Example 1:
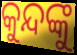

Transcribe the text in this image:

କୁନ୍ଦଙ୍କୁ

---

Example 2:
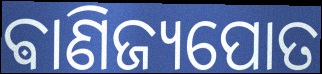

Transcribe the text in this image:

ଵାଣିଜ୍ୟପୋତ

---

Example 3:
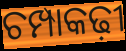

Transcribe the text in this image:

ଚମ୍ପାକଢ଼ୀ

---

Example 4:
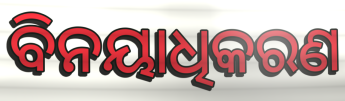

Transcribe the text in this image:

ବିନୟାଧିକରଣ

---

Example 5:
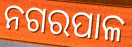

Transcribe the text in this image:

ନଗରପାଳ